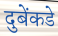
दुबेंकडे